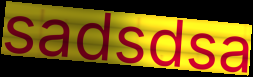
sadsdsa